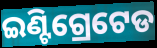
ଇଣ୍ଟିଗ୍ରେଟେଡ